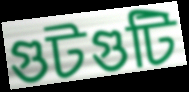
গুটগুটি